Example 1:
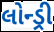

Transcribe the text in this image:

લોન્ડ્રી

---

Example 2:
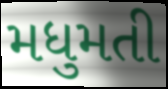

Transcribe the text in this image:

મધુમતી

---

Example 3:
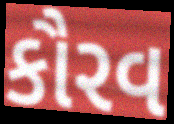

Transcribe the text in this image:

કૌરવ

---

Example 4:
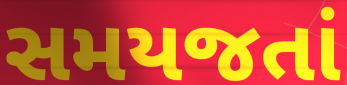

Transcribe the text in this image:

સમયજતાં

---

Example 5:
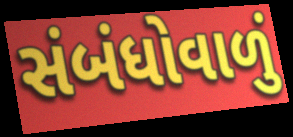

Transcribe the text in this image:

સંબંધોવાળું